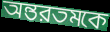
অন্তরতমকে